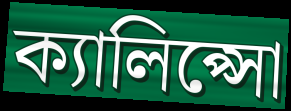
ক্যালিপ্সো